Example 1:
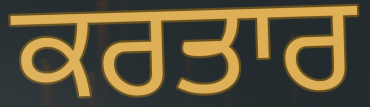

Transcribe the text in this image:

ਕਰਤਾਰ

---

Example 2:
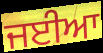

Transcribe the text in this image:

ਜਈਆ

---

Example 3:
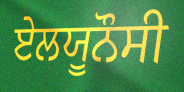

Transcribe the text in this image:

ਏਲਯੂਨੌਸੀ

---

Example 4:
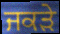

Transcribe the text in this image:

ਜਕੜੇ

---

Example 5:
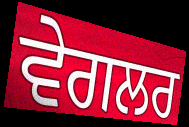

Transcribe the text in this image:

ਵੇਗਲਰ